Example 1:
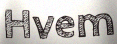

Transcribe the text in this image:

Hvem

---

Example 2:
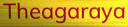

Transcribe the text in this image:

Theagaraya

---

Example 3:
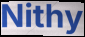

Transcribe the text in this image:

Nithy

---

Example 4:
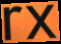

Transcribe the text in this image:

rx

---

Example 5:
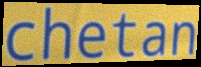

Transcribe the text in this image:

chetan